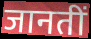
जानतीं